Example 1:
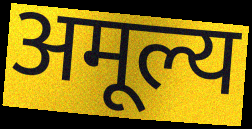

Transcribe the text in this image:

अमूल्‍य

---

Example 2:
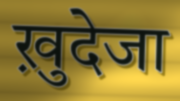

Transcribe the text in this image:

ख़ुदेजा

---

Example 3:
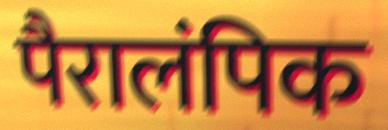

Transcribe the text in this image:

पैरालंपिक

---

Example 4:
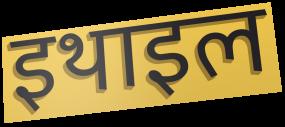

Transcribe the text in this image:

इथाइल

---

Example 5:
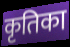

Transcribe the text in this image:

कृतिका